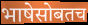
भाषेसोबतच